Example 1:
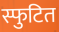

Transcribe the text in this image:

स्फुटित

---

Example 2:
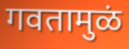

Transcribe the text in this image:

गवतामुळं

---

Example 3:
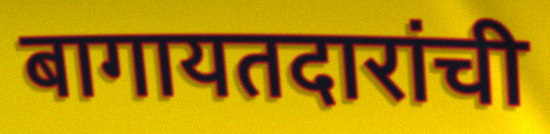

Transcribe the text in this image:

बागायतदारांची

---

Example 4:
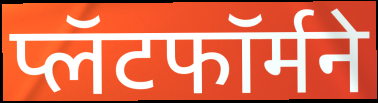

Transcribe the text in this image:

प्लॅटफॉर्मने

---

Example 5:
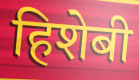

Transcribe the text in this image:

हिशेबी